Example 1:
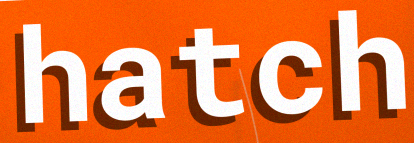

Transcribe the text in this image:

hatch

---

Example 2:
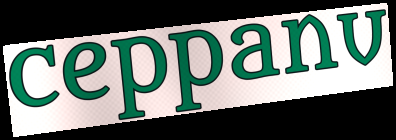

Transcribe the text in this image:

ceppanu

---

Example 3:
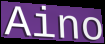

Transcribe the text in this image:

Aino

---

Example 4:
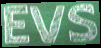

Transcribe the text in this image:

EVS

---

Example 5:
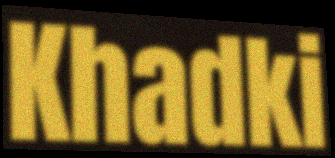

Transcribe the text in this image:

Khadki